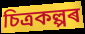
চিত্ৰকল্পৰ